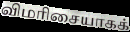
விமரிசையாகக்